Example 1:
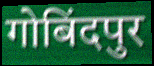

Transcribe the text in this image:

गोबिंदपुर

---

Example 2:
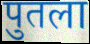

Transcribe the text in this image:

पुतला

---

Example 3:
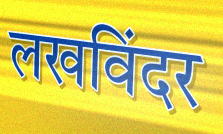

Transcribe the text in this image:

लखविंदर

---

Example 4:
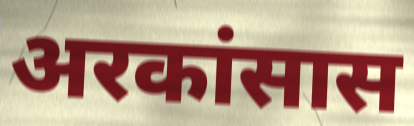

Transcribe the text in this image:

अरकांसास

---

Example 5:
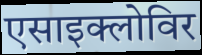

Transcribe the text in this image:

एसाइक्लोविर